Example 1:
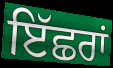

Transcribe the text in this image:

ਇੱਛਰਾਂ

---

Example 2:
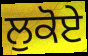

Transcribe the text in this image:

ਲੁਕੋਏ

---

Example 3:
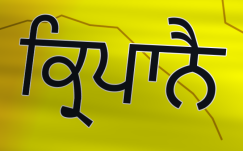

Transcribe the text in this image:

ਕ੍ਰਿਪਾਨੈ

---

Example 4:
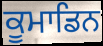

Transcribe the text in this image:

ਕੂਮਾਡਿਨ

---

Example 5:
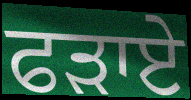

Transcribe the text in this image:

ਫੜਾਏ